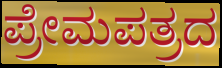
ಪ್ರೇಮಪತ್ರದ